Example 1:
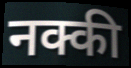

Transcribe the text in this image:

नक्की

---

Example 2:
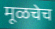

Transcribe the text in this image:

मूळचेच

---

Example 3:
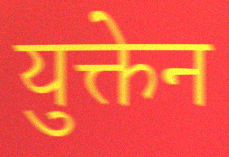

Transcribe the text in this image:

युक्तेन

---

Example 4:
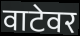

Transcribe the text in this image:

वाटेवर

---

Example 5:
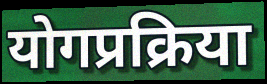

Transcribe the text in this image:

योगप्रक्रिया